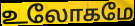
உலோகமே